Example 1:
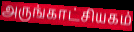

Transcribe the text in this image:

அருங்காட்சியகம்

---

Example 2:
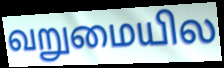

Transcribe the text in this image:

வறுமையில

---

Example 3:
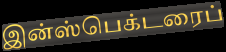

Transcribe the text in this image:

இன்ஸ்பெக்டரைப்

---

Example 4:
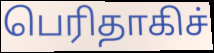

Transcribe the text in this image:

பெரிதாகிச்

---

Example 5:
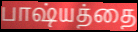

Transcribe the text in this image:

பாஷ்யத்தை